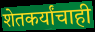
शेतकर्यांचाही